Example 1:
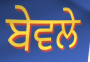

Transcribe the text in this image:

ਬੇਵਲੇ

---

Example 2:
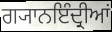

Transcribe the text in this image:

ਗ੍ਯਾਨਇੰਦ੍ਰੀਆਂ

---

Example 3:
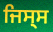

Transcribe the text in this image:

ਜਿਸ੍ਸ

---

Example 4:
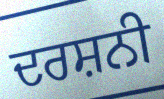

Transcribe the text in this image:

ਦਰਸ਼ਨੀ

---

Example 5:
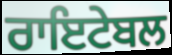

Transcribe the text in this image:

ਰਾਇਟੇਬਲ